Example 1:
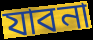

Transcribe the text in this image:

যাবনা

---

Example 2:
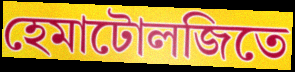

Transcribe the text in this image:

হেমাটোলজিতে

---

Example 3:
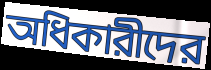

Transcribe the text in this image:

অধিকারীদের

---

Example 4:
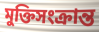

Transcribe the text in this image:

মুক্তিসংক্রান্ত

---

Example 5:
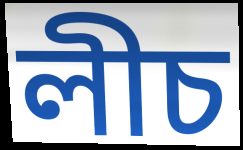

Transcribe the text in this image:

লীচ